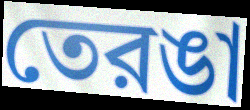
তেরঙা